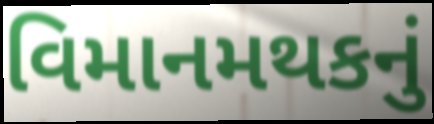
વિમાનમથકનું